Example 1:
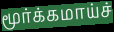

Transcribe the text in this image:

மூர்க்கமாய்ச்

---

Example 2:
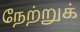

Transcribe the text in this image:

நேற்றுக்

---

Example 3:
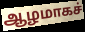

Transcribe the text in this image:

ஆழமாகச்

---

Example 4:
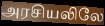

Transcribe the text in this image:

அரசியலிலே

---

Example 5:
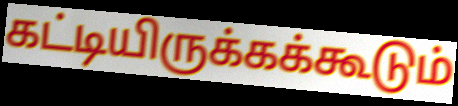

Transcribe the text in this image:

கட்டியிருக்கக்கூடும்